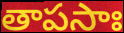
తాపసాః